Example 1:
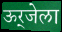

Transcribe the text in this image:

ऊर्जेला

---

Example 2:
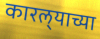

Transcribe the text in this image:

कारल्याच्या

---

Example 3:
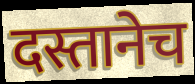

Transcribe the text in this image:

दस्तानेच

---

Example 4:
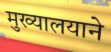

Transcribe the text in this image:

मुख्यालयाने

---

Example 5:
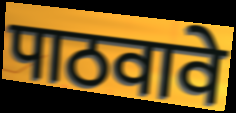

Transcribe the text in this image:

पाठवावे